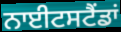
ਨਾਈਟਸਟੈਂਡਾਂ